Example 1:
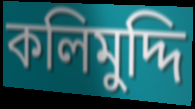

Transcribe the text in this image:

কলিমুদ্দি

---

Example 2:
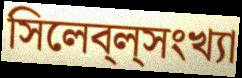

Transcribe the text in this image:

সিলেব্‌ল্‌সংখ্যা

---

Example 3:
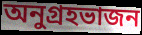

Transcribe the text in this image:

অনুগ্রহভাজন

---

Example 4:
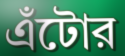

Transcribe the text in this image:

এঁটোর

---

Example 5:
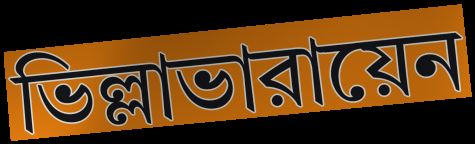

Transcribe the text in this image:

ভিল্লাভারায়েন